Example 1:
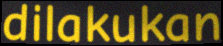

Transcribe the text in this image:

dilakukan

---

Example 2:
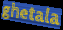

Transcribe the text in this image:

ghetala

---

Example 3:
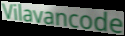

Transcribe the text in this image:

Vilavancode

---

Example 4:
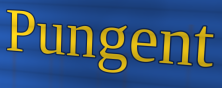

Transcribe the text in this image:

Pungent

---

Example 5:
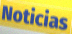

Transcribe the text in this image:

Noticias